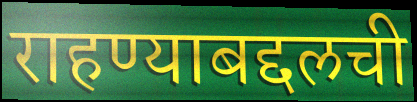
राहण्याबद्दलची